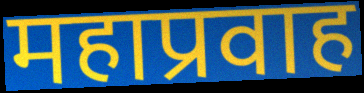
महाप्रवाह